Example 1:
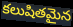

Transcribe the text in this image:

కలుషితమైన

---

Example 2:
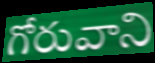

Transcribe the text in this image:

గోరువాని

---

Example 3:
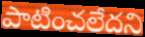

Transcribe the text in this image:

పాటించలేదని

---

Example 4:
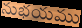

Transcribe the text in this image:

నుభయము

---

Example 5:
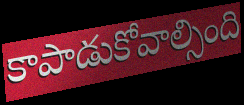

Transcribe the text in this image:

కాపాడుకోవాల్సింది